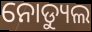
ନୋଡ୍ୟୁଲ